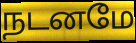
நடனமே